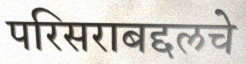
परिसराबद्दलचे